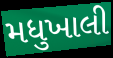
મધુખાલી